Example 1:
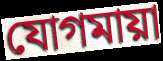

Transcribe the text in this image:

যোগমায়া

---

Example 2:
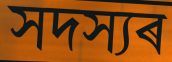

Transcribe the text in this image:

সদস্যৰ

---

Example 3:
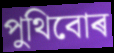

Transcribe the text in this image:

পুথিবোৰ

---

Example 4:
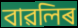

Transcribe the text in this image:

বাৱলিৰ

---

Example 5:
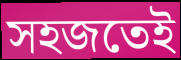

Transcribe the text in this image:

সহজতেই